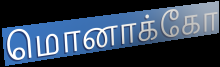
மொனாக்கோ